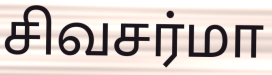
சிவசர்மா